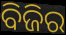
ବିଜିର